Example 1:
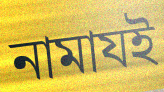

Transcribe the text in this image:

নামাযই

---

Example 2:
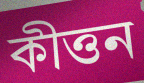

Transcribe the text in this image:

কীত্তন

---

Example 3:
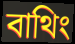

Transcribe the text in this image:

বাথিং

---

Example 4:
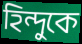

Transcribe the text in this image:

হিন্দুকে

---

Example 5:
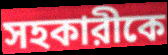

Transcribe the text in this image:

সহকারীকে